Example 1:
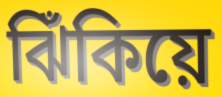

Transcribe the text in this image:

ঝিঁকিয়ে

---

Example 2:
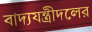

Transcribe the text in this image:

বাদ্যযন্ত্রীদলের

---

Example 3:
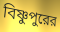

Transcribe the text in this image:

বিষ্ণুপুরের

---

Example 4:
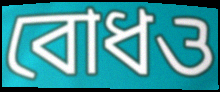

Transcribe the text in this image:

বোধও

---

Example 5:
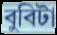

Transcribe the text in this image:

বুবিটা